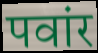
पवांर